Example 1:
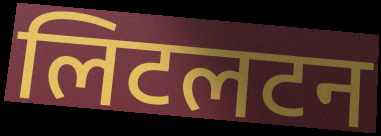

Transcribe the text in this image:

लिटलटन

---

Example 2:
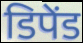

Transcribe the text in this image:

डिपेंड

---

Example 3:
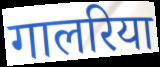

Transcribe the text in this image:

गालरिया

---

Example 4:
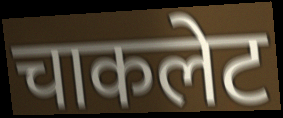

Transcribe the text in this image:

चाकलेट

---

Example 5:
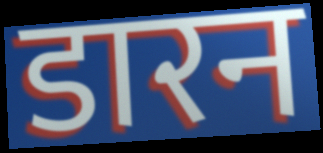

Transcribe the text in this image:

डारन